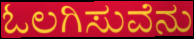
ಓಲಗಿಸುವೆನು